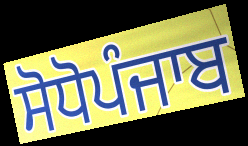
ਸੋਧੋਪੰਜਾਬ